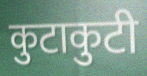
कुटाकुटी